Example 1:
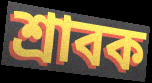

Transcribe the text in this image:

শ্রাবক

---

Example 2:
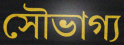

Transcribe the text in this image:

সৌভাগ্য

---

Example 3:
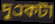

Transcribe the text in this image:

দুএকটা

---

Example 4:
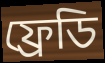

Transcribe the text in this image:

ফ্রেডি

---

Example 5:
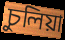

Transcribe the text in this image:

চুলিয়া